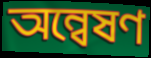
অন্বেষণ